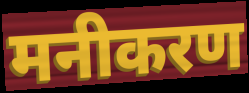
मनीकरण